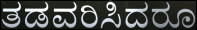
ತಡವರಿಸಿದರೂ